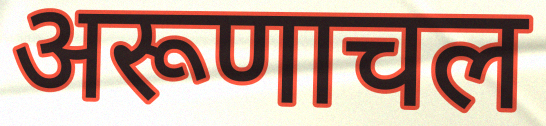
अरूणाचल